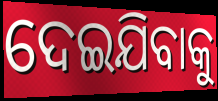
ଦେଇଯିବାକୁ